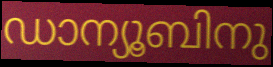
ഡാന്യൂബിനു